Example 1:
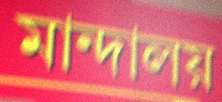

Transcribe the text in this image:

মান্দালয়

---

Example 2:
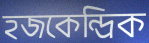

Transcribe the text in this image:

হজকেন্দ্রিক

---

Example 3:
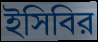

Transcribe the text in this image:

ইসিবির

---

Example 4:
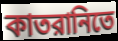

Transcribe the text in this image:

কাতরানিতে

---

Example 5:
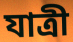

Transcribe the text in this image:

যাত্রী